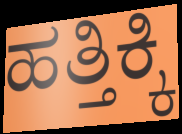
ಹತ್ತಿಕ್ಕಿ